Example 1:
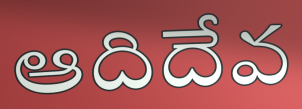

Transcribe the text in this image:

ఆదిదేవ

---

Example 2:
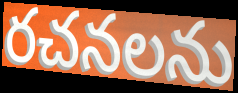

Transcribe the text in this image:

రచనలను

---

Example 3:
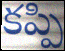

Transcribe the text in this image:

కప్పి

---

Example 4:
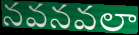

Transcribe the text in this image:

నవనవలా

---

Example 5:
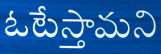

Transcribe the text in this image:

ఓటేస్తామని